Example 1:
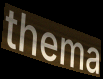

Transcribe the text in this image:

thema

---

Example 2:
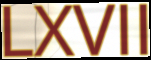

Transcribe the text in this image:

LXVII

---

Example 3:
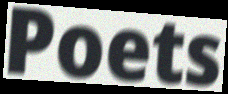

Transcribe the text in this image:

Poets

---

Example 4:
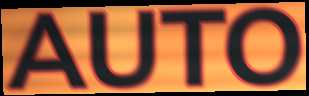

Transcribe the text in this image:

AUTO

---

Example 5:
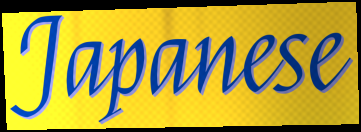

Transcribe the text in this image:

Japanese